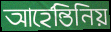
আর্হেন্তিনিয়